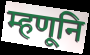
म्हणूनि